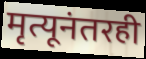
मृत्यूनंतरही